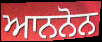
ਆਨਨੋਨ